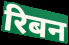
रिबन